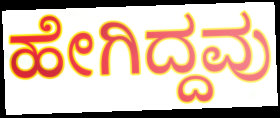
ಹೇಗಿದ್ದವು